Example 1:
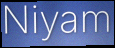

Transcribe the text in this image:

Niyam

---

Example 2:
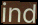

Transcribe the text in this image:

ind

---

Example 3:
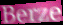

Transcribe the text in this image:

Berze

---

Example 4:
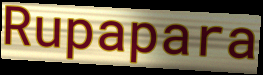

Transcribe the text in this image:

Rupapara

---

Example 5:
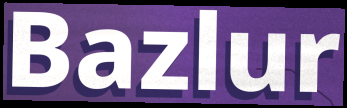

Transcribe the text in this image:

Bazlur